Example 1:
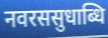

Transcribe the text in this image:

नवरससुधाब्धि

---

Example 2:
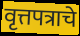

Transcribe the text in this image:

वृत्तपत्राचे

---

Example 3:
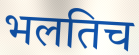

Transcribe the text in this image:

भलतिच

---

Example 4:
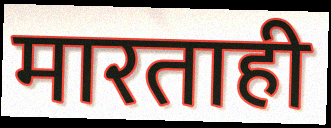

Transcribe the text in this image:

मारताही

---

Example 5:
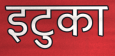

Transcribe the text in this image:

इटुका